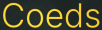
Coeds